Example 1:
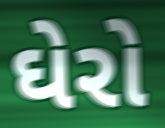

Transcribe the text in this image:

ઘેરો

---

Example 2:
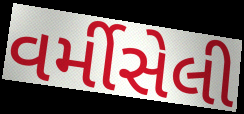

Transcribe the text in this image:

વર્મીસેલી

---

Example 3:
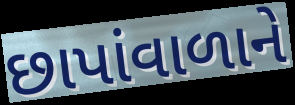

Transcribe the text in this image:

છાપાંવાળાને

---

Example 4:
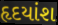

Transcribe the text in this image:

હૃદયાંશ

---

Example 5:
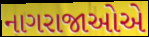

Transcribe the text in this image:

નાગરાજાઓએ